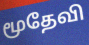
மூதேவி